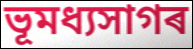
ভূমধ্যসাগৰ